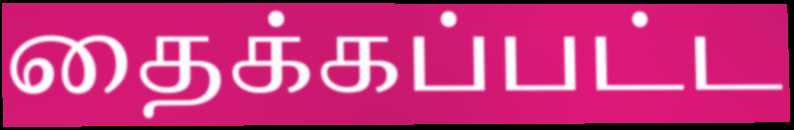
தைக்கப்பட்ட